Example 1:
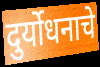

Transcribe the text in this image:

दुर्योधनाचे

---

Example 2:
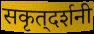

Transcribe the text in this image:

सकृत्‌दर्शनी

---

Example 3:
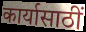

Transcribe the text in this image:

कार्यासाठीं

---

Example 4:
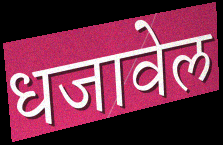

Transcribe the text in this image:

धजावेल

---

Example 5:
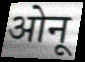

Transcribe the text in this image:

ओनू